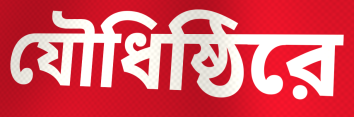
যৌধিষ্ঠিরে